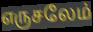
எருசலேம்